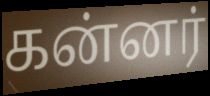
கன்னர்